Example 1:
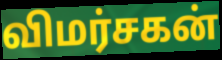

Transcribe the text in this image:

விமர்சகன்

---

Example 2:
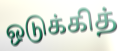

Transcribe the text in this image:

ஒடுக்கித்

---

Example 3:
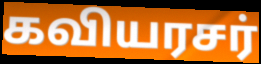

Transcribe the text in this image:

கவியரசர்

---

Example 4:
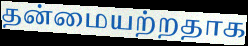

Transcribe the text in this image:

தன்மையற்றதாக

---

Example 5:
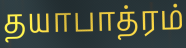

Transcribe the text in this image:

தயாபாத்ரம்